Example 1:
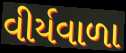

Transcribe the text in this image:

વીર્યવાળા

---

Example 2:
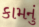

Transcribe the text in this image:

કામનું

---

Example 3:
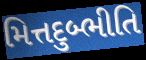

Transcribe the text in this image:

મિત્તદુબ્ભીતિ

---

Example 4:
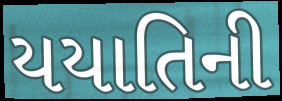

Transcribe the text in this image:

યયાતિની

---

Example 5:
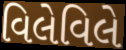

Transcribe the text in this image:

વિલેવિલે